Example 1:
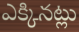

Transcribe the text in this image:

ఎక్కినట్లు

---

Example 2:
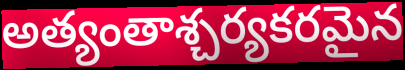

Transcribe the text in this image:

అత్యంతాశ్చర్యకరమైన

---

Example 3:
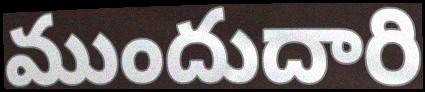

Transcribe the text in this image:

ముందుదారి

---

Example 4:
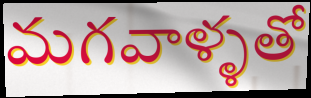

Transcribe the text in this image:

మగవాళ్ళతో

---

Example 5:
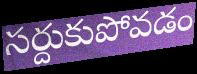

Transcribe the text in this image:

సర్దుకుపోవడం